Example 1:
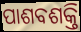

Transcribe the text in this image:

ପାଶବଶକ୍ତି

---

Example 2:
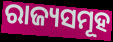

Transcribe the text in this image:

ରାଜ୍ୟସମୂହ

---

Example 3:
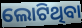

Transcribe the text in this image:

ଲୋଟିଥିବା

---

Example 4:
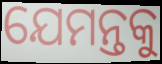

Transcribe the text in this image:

ଯେମନ୍ତକୁ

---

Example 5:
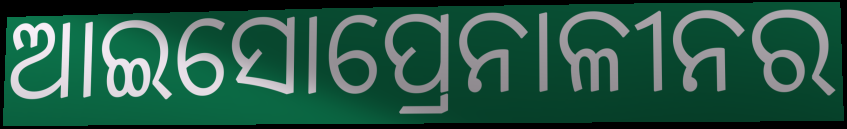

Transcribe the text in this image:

ଆଇସୋପ୍ରେନାଳୀନର